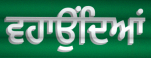
ਵਹਾਉਂਦਿਆਂ